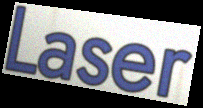
Laser